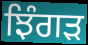
ਝਿੰਗੜ